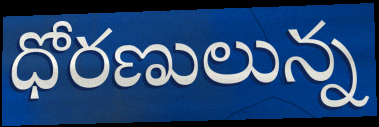
ధోరణులున్న